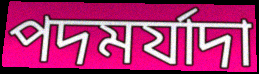
পদমৰ্যাদা